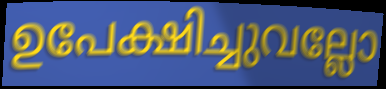
ഉപേക്ഷിച്ചുവല്ലോ